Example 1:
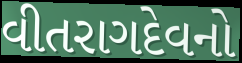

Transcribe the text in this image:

વીતરાગદેવનો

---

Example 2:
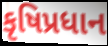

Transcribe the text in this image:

કૃષિપ્રધાન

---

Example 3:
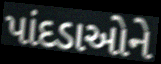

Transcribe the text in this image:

પાંદડાઓને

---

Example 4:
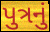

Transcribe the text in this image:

પુત્રનું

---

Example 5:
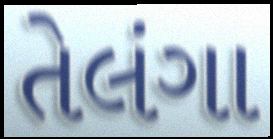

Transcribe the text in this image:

તેલંગા